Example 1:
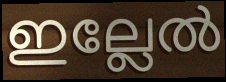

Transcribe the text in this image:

ഇല്ലേൽ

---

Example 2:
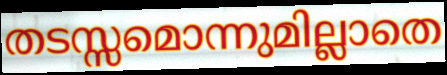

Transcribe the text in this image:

തടസ്സമൊന്നുമില്ലാതെ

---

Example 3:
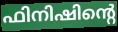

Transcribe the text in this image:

ഫിനിഷിന്റെ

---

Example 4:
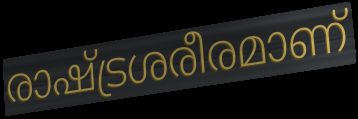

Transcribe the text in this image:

രാഷ്ട്രശരീരമാണ്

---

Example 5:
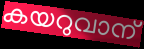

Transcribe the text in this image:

കയറുവാന്